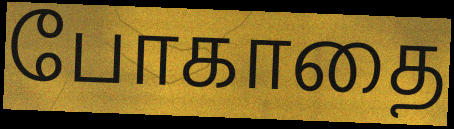
போகாதை